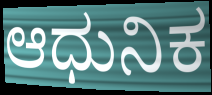
ಆಧುನಿಕ